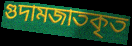
গুদামজাতকৃত